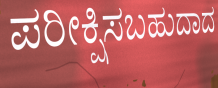
ಪರೀಕ್ಷಿಸಬಹುದಾದ